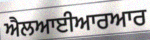
ਐਲਆਈਆਰਆਰ